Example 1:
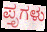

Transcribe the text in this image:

ಪ್ತೃಗಳು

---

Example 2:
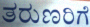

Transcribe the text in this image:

ತರುಣರಿಗೆ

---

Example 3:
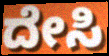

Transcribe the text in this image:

ದೇಸಿ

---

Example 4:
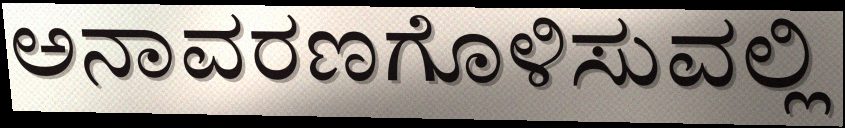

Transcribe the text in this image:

ಅನಾವರಣಗೊಳಿಸುವಲ್ಲಿ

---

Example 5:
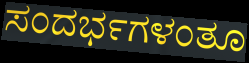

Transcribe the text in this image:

ಸಂದರ್ಭಗಳಂತೂ